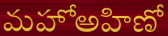
మహోఅహిణో